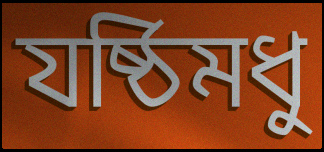
যষ্ঠিমধু